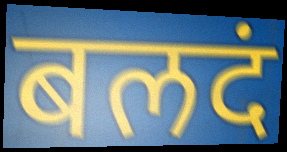
बलदं